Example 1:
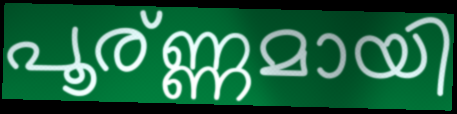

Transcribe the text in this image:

പൂര്ണ്ണമായി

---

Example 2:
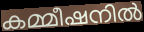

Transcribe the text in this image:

കമ്മീഷനിൽ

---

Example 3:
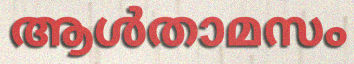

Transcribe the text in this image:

ആൾതാമസം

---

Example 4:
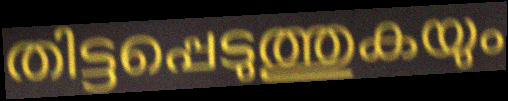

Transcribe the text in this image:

തിട്ടപ്പെടുത്തുകയും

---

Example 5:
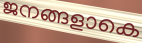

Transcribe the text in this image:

ജനങ്ങളാകെ